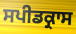
ਸਪੀਡਕ੍ਰਾਸ